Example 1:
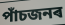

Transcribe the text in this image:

পাঁচজনৰ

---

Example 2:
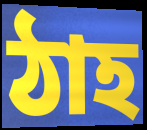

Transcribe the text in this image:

ঠাহ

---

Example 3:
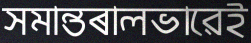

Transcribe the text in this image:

সমান্তৰালভাৱেই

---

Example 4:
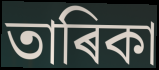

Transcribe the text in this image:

তাৰিকা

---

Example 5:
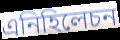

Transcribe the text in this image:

এনিহিলেচন